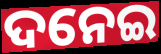
ଦନେଇ